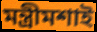
মন্ত্রীমশাই